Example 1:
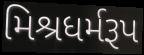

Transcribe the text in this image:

મિશ્રધર્મરૂપ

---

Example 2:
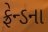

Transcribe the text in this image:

ફ્રેન્ડના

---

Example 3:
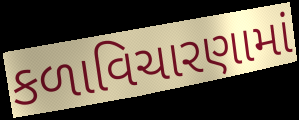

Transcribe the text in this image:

કળાવિચારણામાં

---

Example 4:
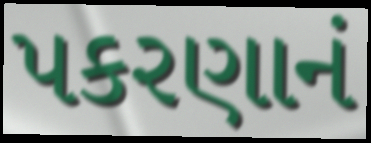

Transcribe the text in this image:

પકરણાનં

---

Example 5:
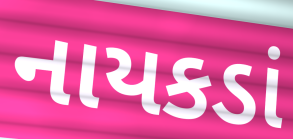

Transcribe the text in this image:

નાયકડાં